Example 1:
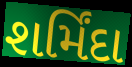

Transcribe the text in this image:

શર્મિંદા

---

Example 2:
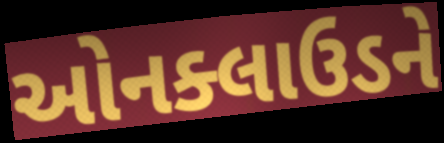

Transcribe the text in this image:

ઓનક્લાઉડને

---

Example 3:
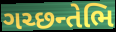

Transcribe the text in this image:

ગચ્છન્તેભિ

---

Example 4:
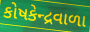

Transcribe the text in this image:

કોષકેન્દ્રવાળા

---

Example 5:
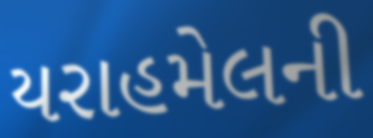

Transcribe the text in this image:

યરાહમેલની